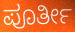
ಪೂರ್ತೀ